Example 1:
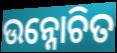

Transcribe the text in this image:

ଉନ୍ନୋଚିତ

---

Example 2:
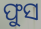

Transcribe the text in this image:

ଫୁସ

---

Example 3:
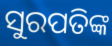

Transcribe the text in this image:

ସୁରପତିଙ୍କ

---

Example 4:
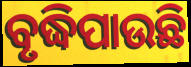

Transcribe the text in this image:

ବୃଦ୍ଧିପାଉଛି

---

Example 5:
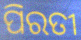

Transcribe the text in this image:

ପିରତୀ